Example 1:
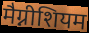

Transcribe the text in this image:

मैग्नीशियम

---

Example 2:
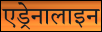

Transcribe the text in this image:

एड्रेनालाइन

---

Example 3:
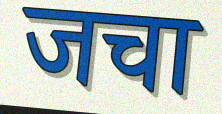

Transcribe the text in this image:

जचा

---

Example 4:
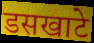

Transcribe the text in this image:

डसखाटे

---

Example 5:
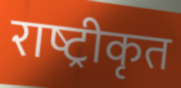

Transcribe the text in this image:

राष्ट्रीकृत